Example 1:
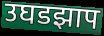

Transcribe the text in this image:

उघडझाप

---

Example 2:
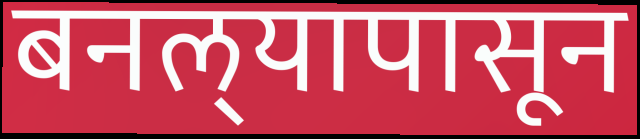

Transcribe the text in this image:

बनल्यापासून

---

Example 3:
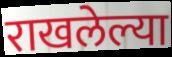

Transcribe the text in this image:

राखलेल्या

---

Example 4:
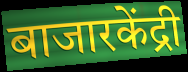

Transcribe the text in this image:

बाजारकेंद्री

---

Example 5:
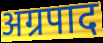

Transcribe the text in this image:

अग्रपाद